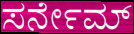
ಸರ್ನೇಮ್